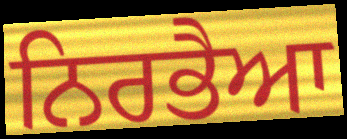
ਨਿਰਭੈਆ